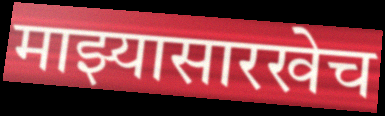
माझ्यासारखेच